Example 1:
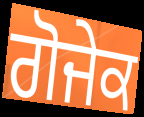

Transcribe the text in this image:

ਗੋਜੇਕ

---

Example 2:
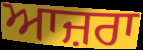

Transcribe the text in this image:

ਆਜ਼ਰਾ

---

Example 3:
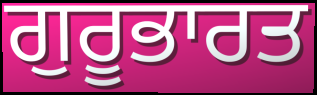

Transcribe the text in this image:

ਗੁਰੂਭਾਰਤ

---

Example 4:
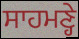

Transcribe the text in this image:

ਸਾਹਮਣ੍ਹੇ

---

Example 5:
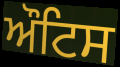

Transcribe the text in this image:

ਔਟਿਸ